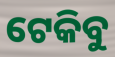
ଟେକିବୁ